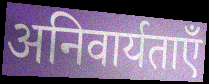
अनिवार्यताएँ